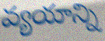
వ్యయాన్ని